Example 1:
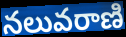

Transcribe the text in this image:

నలువరాణి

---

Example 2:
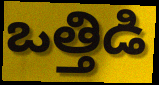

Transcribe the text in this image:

ఒత్తిడి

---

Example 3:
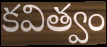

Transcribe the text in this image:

కవిత్వం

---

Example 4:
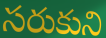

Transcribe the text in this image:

సరుకుని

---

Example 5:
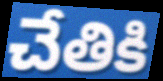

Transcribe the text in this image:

చేతికి